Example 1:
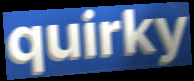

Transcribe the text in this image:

quirky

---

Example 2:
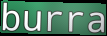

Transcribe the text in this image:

burra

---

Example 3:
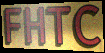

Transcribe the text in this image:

FHTC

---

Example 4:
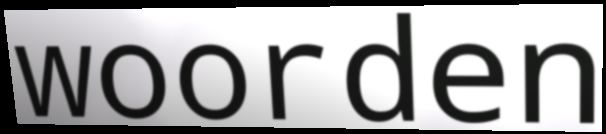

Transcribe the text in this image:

woorden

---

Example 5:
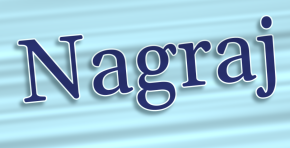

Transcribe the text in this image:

Nagraj